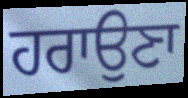
ਹਰਾਉਣਾ